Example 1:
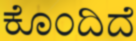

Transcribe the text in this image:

ಕೊಂದಿದೆ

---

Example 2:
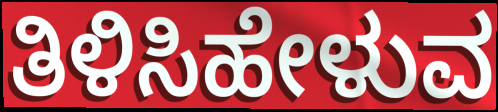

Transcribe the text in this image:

ತಿಳಿಸಿಹೇಳುವ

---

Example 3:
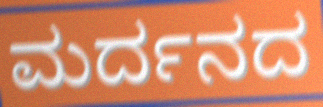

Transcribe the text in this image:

ಮರ್ದನದ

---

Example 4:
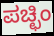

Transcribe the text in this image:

ಪಚ್ಛಿಂ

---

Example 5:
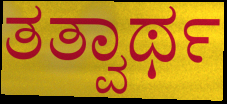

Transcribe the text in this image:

ತತ್ವಾರ್ಥ